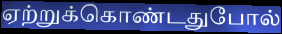
ஏற்றுக்கொண்டதுபோல்